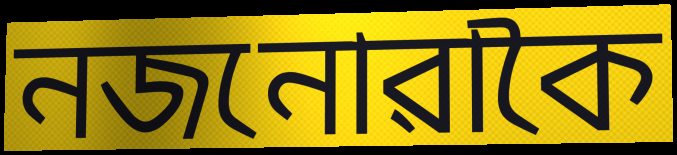
নজনোৱাকৈ